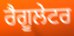
ਰੈਗੂਲੇਟਰ